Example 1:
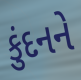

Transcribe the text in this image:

કુંદનને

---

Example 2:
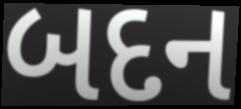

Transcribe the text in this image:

બદન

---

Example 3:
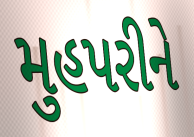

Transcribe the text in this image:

મુહપરીને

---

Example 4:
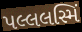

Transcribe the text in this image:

પલ્લલસ્મિં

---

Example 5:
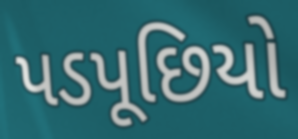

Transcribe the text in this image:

પડપૂછિયો